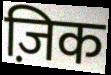
ज़िक